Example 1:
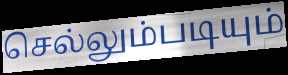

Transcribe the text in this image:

செல்லும்படியும்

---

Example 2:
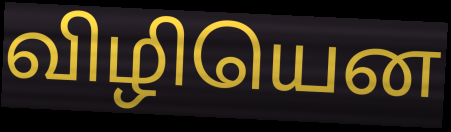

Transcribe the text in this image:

விழியென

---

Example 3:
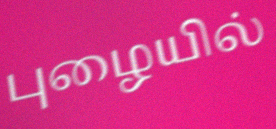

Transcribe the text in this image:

புழையில்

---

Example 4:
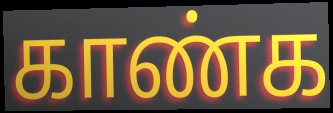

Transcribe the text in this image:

காண்க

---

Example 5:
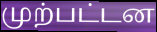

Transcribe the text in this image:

முற்பட்டன